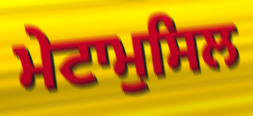
ਮੇਟਾਮੁਸਿਲ